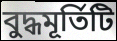
বুদ্ধমূর্তিটি